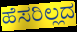
ಹೆಸರಿಲ್ಲದ